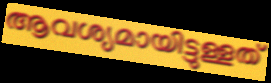
ആവശ്യമായിട്ടുള്ളത്